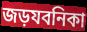
জড়যবনিকা